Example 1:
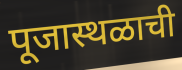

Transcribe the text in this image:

पूजास्थळाची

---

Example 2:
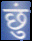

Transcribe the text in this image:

छुं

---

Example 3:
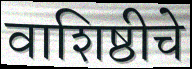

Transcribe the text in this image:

वाशिष्ठीचे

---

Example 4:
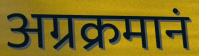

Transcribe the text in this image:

अग्रक्रमानं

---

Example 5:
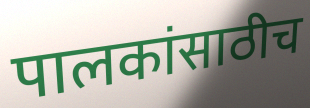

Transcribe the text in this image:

पालकांसाठीच